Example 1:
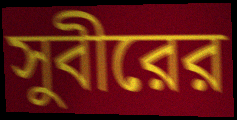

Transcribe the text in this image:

সুবীরের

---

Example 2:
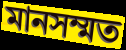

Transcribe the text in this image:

মানসম্মত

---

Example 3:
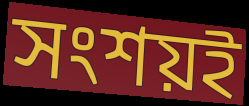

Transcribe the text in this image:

সংশয়ই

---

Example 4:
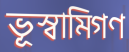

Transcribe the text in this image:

ভূস্বামিগণ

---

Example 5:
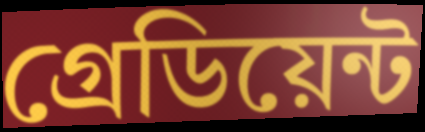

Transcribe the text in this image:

গ্রেডিয়েন্ট